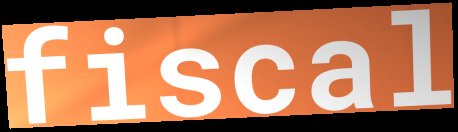
fiscal